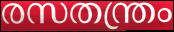
രസതന്ത്രം